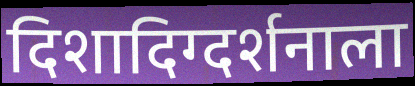
दिशादिग्दर्शनाला